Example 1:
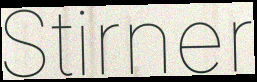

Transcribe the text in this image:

Stirner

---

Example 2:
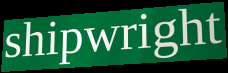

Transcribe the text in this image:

shipwright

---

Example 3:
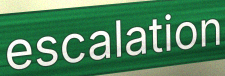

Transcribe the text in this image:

escalation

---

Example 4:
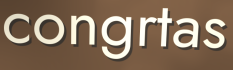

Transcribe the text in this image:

congrtas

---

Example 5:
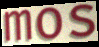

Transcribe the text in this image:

mos